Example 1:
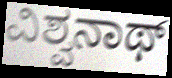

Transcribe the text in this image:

ವಿಶ್ವನಾಥ್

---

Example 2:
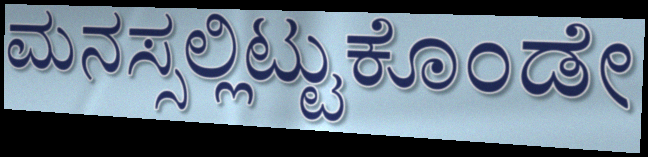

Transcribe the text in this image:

ಮನಸ್ಸಲ್ಲಿಟ್ಟುಕೊಂಡೇ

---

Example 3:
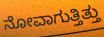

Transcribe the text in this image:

ನೋವಾಗುತ್ತಿತ್ತು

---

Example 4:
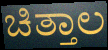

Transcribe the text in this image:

ಚಿತ್ತಾಲ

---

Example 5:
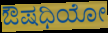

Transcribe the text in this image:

ಔಷಧಿಯೋ